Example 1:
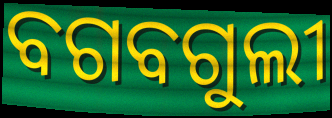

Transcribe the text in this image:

ବଗବଗୁଲୀ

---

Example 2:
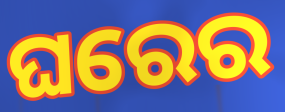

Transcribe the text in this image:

ଘରେର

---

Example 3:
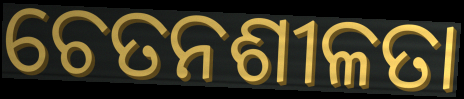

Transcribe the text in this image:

ଚେତନଶୀଳତା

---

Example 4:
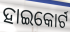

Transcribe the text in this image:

ହାଇକୋର୍ଟ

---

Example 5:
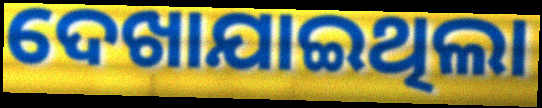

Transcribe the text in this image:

ଦେଖାଯାଇଥିଲା